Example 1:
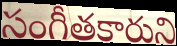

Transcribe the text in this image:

సంగీతకారుని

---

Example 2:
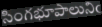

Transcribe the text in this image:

సింగభూపాలునిఁ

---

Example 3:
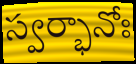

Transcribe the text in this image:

స్వర్భానోః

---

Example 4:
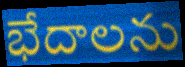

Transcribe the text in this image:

భేదాలను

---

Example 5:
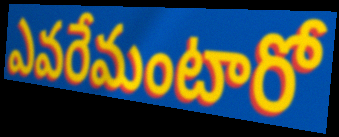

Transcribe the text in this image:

ఎవరేమంటారో